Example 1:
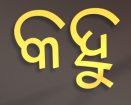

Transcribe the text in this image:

କହୁ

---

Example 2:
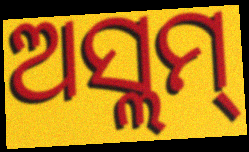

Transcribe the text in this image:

ଅସ୍ଲମ୍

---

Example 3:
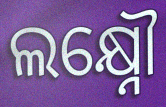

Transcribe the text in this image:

ଲକ୍ଷ୍ନୌ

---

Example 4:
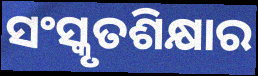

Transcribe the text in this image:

ସଂସ୍କୃତଶିକ୍ଷାର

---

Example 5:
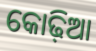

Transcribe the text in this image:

କୋଢ଼ିଆ